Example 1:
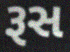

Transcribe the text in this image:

રૂસ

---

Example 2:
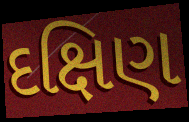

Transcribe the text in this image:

દક્ષિણ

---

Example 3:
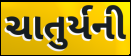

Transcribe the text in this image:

ચાતુર્યની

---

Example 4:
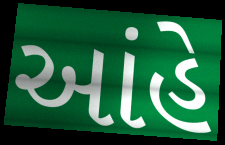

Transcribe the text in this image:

આંહે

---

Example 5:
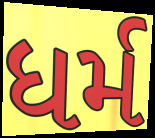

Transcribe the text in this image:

ધર્મ